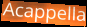
Acappella